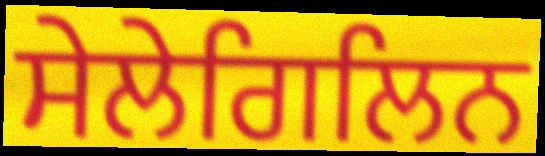
ਸੇਲੇਗਿਲਿਨ